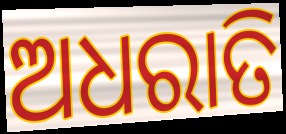
ଅଧରାତି